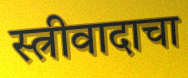
स्त्रीवादाचा